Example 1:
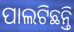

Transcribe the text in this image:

ପାଲଟିଛନ୍ତି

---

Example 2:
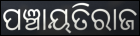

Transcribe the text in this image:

ପଞ୍ଚାୟତିରାଜ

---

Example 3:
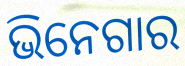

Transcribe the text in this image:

ଭିନେଗାର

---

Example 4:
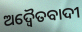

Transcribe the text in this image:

ଅଦ୍ୱୈତବାଦୀ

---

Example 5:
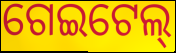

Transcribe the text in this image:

ଗେଇଟେଲ୍